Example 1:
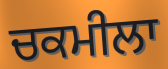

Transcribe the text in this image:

ਚਕਮੀਲਾ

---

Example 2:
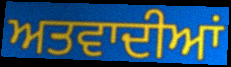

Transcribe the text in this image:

ਅਤਵਾਦੀਆਂ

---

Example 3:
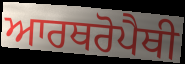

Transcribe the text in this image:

ਆਰਥਰੋਪੈਥੀ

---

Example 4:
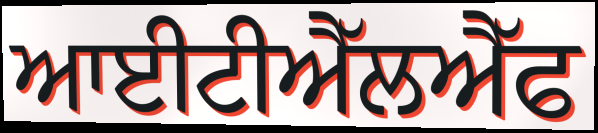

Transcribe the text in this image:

ਆਈਟੀਐੱਲਐੱਫ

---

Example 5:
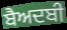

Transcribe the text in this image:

ਬੈਅਦਬੀ